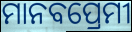
ମାନବପ୍ରେମୀ